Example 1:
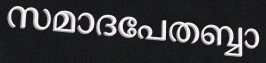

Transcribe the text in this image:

സമാദപേതബ്ബാ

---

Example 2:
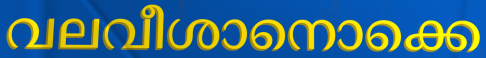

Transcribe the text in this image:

വലവീശാനൊക്കെ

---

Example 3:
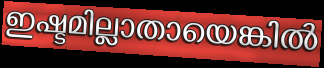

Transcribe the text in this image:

ഇഷ്ടമില്ലാതായെങ്കിൽ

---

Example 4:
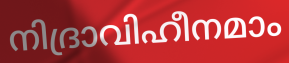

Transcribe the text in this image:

നിദ്രാവിഹീനമാം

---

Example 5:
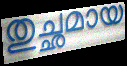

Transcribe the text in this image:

തുച്ഛമായ